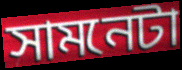
সামনেটা